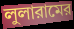
লুলারামের